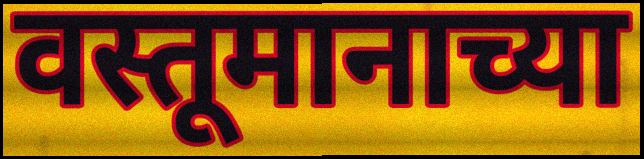
वस्तूमानाच्या